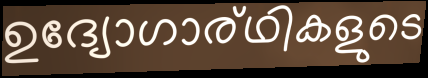
ഉദ്യോഗാര്ഥികളുടെ